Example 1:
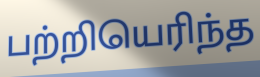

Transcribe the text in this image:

பற்றியெரிந்த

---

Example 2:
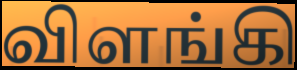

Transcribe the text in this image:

விளங்கி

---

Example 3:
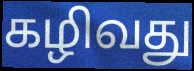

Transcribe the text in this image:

கழிவது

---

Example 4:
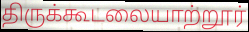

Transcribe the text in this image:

திருக்கூடலையாற்றூர்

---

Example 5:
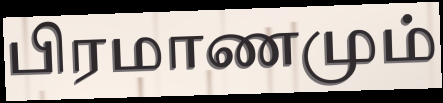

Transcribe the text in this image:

பிரமாணமும்